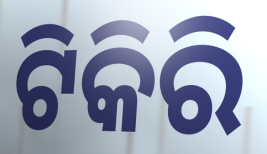
ଟିକିରି